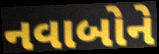
નવાબોને